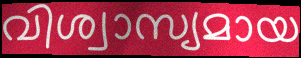
വിശ്വാസ്യമായ